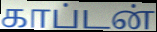
காப்டன்